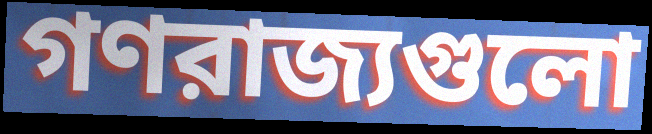
গণরাজ্যগুলো